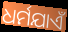
ଧର୍ମଯାଏଁ